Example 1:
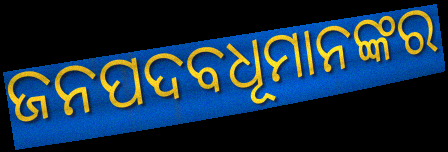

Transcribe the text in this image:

ଜନପଦବଧୂମାନଙ୍କର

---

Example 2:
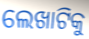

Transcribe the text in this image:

ଲେଖାଟିକୁ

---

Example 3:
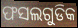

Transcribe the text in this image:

ଫସଲଗୁଡିକ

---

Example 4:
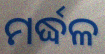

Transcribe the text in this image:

ମର୍ଦ୍ଧଳ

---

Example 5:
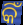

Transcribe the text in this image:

କିଁ